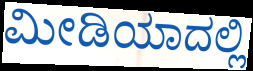
ಮೀಡಿಯಾದಲ್ಲಿ